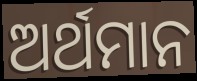
ଅର୍ଥମାନ